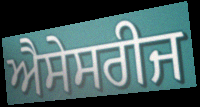
ਐਸੇਸਰੀਜ